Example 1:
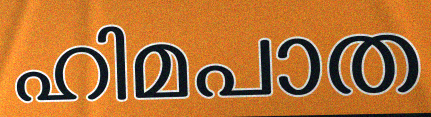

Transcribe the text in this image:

ഹിമപാത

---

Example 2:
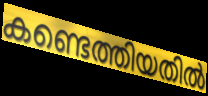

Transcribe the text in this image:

കണ്ടെത്തിയതിൽ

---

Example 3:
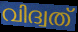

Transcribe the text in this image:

വിദ്വത്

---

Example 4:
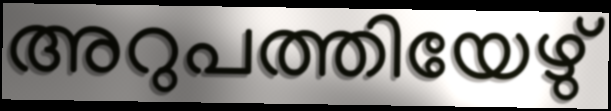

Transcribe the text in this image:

അറുപത്തിയേഴു്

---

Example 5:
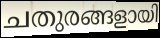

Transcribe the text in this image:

ചതുരങ്ങളായി